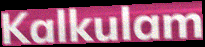
Kalkulam